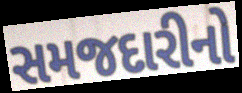
સમજદારીનો